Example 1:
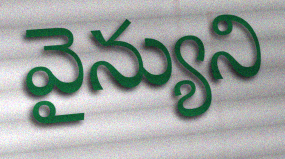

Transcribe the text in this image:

వైన్యుని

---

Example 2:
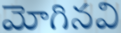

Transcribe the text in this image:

మోగినవి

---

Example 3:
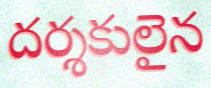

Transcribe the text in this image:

దర్శకులైన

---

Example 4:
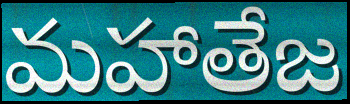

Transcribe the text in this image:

మహాతేజ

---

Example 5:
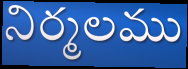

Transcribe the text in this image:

నిర్మలము